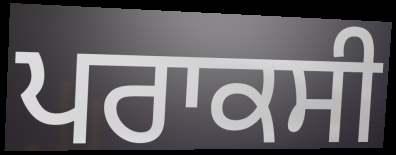
ਪਰਾਕਸੀ